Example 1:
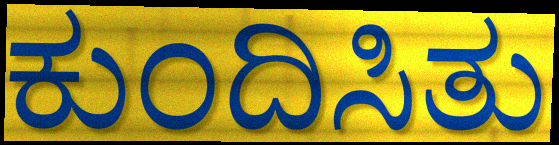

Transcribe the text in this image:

ಕುಂದಿಸಿತು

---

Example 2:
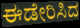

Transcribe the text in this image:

ಈಡೇರಿಸಿದ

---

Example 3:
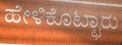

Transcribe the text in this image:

ಹೇಳಿಕೊಟ್ಟಾರು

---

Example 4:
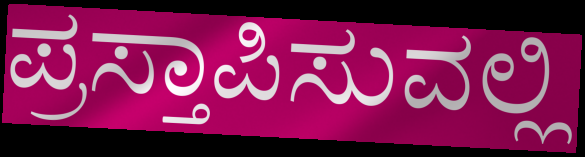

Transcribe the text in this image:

ಪ್ರಸ್ತಾಪಿಸುವಲ್ಲಿ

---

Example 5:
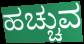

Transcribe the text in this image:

ಹಚ್ಚುವ